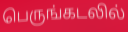
பெருங்கடலில்